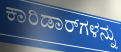
ಕಾರಿಡಾರ್‌ಗಳನ್ನು